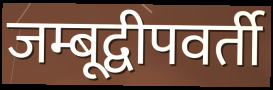
जम्बूद्वीपवर्ती